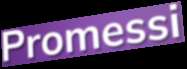
Promessi